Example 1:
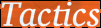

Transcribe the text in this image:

Tactics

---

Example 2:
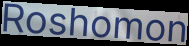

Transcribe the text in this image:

Roshomon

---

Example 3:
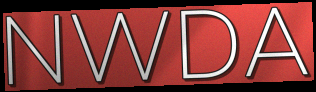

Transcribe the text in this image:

NWDA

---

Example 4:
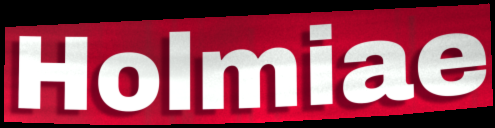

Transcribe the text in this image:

Holmiae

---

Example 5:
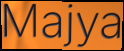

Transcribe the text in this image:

Majya